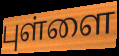
புள்ளை